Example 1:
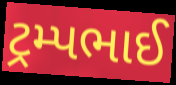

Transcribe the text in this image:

ટ્રમ્પભાઈ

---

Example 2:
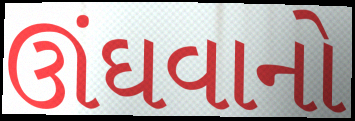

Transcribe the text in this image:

ઊંઘવાનો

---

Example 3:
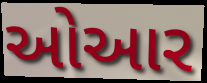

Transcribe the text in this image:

ઓઆર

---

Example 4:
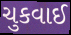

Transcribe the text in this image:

ચુકવાઈ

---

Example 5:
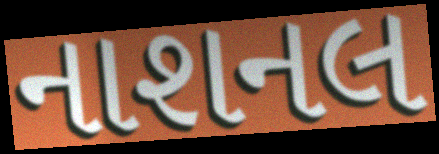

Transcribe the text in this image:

નાશનલ